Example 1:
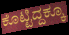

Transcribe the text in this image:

ಕೊಟ್ಟಿದ್ದಕ್ಕೂ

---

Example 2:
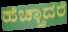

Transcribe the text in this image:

ಹೆಚ್ಚಾದರೆ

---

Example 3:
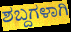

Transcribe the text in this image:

ಶಬ್ದಗಳಾಗಿ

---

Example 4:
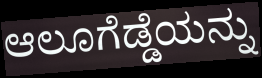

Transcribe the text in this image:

ಆಲೂಗೆಡ್ಡೆಯನ್ನು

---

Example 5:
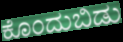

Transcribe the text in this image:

ಕೊಂದುಬಿಡು